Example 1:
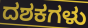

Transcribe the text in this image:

ದಶಕಗಳು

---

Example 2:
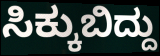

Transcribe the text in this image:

ಸಿಕ್ಕುಬಿದ್ದು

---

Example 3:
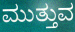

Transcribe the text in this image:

ಮುತ್ತುವ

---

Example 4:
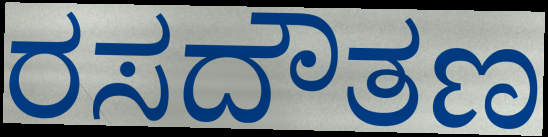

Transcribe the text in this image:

ರಸದೌತಣ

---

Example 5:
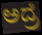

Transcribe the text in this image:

ಅದ್ರೆ